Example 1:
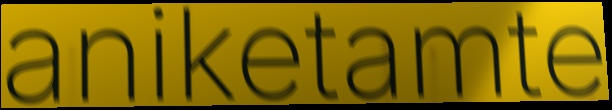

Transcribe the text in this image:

aniketamte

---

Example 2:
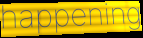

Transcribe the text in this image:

happening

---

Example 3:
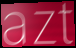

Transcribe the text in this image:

azt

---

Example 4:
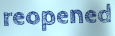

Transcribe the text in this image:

reopened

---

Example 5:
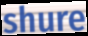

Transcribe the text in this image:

shure